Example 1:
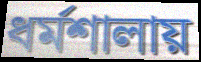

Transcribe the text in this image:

ধর্মশালায়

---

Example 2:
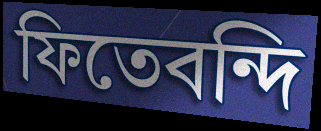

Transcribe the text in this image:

ফিতেবন্দি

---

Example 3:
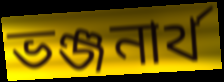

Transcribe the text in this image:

ভঞ্জনার্থ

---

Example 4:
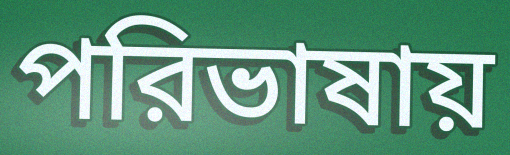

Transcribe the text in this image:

পরিভাষায়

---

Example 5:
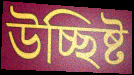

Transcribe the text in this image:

উচ্ছিষ্ট